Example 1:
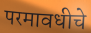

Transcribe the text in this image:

परमावधीचे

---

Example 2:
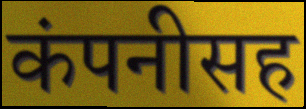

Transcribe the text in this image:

कंपनीसह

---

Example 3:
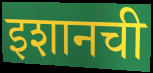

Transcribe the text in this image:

इशानची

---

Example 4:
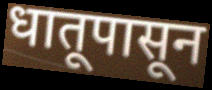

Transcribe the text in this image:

धातूपासून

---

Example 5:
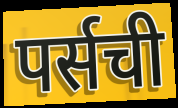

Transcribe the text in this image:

पर्सची